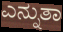
ಎನ್ನುತಾ